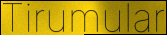
Tirumular